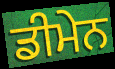
ਡੀਮੇਨ